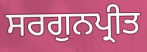
ਸਰਗੁਨਪ੍ਰੀਤ